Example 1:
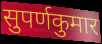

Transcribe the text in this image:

सुपर्णकुमार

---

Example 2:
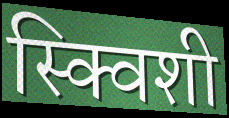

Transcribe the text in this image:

स्क्विशी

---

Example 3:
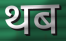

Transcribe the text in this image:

थब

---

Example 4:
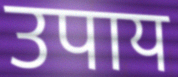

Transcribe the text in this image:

उपाय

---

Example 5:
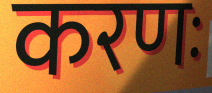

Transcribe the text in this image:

करणः